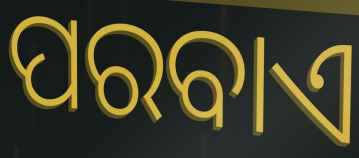
ପରବାଏ